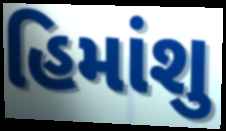
હિમાંશુ